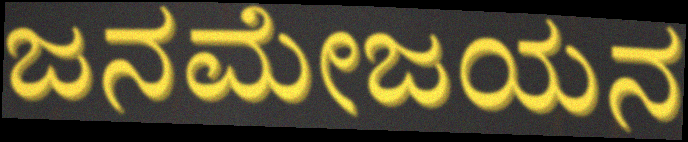
ಜನಮೇಜಯನ